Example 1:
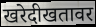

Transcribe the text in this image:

खरेदीखतावर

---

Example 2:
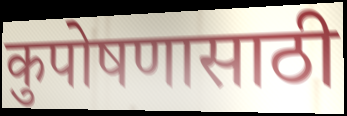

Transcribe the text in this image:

कुपोषणासाठी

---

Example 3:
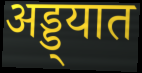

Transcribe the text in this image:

अड्ड्यात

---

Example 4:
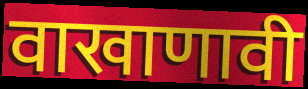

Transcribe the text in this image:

वाखाणावी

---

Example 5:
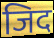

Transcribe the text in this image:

जिद